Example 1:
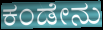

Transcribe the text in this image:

ಕಂಡೇನು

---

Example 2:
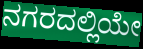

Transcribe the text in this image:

ನಗರದಲ್ಲಿಯೇ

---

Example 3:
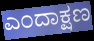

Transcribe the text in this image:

ಎಂದಾಕ್ಷಣ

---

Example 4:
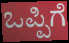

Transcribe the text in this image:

ಒಪ್ಪಿಗೆ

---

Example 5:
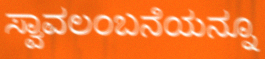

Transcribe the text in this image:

ಸ್ವಾವಲಂಬನೆಯನ್ನೂ